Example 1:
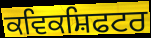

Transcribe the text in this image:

ਕਵਿਕਸ਼ਿਫਟਰ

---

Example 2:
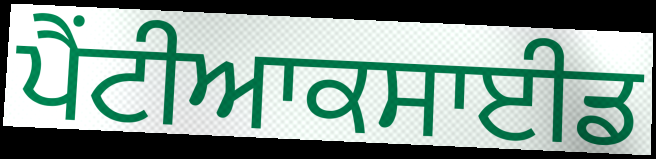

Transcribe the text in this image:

ਪੈਂਟੀਆਕਸਾਈਡ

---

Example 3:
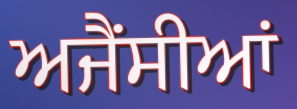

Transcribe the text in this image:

ਅਜੈਂਸੀਆਂ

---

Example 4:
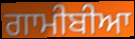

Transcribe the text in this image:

ਗਾਮੀਬੀਆ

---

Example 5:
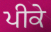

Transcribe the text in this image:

ਪੀਕੇ